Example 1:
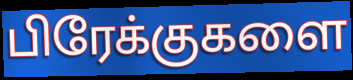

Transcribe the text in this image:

பிரேக்குகளை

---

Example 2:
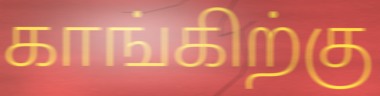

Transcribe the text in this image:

காங்கிற்கு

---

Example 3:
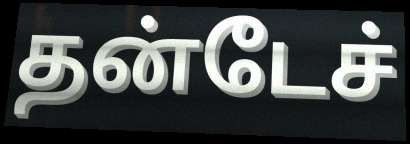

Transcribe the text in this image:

தன்டேச்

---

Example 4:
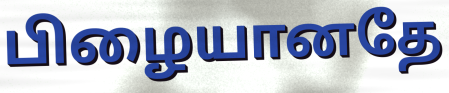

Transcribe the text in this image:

பிழையானதே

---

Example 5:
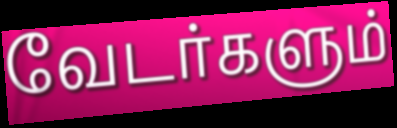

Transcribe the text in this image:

வேடர்களும்